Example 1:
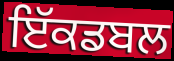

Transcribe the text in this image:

ਇੱਕਡਬਲ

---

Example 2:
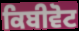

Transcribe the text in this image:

ਕਿਬੀਵੋਟ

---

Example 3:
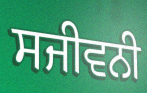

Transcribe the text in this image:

ਸਜੀਵਨੀ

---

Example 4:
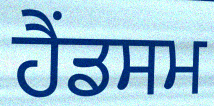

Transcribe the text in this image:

ਹੈਂਡਸਮ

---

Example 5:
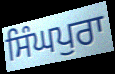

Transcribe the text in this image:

ਸਿੰਘਪੁਰਾ